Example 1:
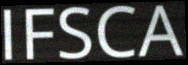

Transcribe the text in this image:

IFSCA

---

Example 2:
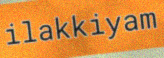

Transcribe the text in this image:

ilakkiyam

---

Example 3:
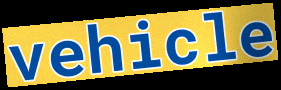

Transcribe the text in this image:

vehicle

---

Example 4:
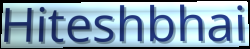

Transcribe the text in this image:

Hiteshbhai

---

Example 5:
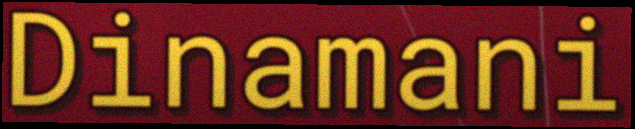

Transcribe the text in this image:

Dinamani